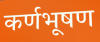
कर्णभूषण